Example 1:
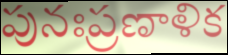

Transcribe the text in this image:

పునఃప్రణాళిక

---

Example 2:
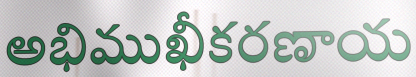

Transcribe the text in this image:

అభిముఖీకరణాయ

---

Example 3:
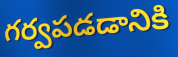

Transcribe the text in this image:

గర్వపడడానికి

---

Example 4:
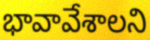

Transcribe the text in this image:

భావావేశాలని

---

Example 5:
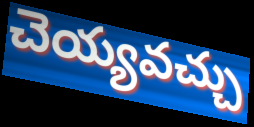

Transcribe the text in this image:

చెయ్యవచ్చు